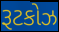
રૂટકોઝ